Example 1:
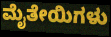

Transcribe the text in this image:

ಮೈತೇಯಿಗಳು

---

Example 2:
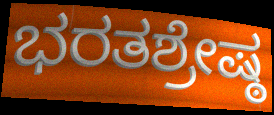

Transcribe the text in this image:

ಭರತಶ್ರೇಷ್ಠ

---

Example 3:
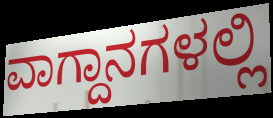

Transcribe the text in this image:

ವಾಗ್ದಾನಗಳಲ್ಲಿ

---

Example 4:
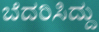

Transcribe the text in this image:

ಬೆದರಿಸಿದ್ದು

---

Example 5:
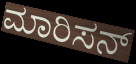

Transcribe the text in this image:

ಮಾರಿಸನ್